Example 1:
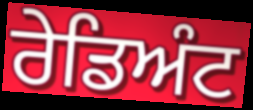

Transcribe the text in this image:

ਰੇਡਿਅੰਟ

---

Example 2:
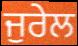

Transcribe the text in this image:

ਜੁਰੇਲ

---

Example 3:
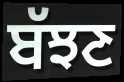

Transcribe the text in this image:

ਬੱਝਣ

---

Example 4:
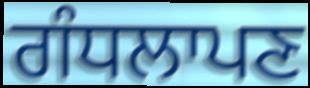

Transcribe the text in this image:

ਗੰਧਲਾਪਣ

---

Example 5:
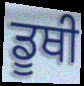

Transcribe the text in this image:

ਡੂਥੀ